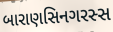
બારાણસિનગરસ્સ